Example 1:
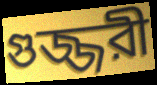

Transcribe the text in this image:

গুজ্জরী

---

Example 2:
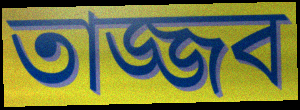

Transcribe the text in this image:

তাজ্জব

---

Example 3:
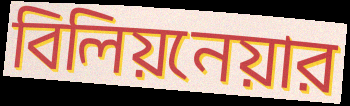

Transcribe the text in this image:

বিলিয়নেয়ার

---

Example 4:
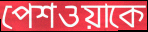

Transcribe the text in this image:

পেশওয়াকে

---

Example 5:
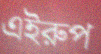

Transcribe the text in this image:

এইরুপ